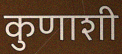
कुणाशी